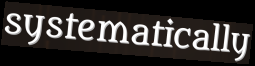
systematically